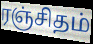
ரஞ்சிதம்